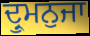
ਦ੍ਰੁਮਨੁਜਾ